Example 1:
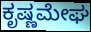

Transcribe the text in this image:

ಕೃಷ್ಣಮೇಘ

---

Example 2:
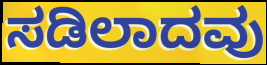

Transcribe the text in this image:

ಸಡಿಲಾದವು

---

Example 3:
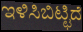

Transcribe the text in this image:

ಇಳಿಸಿಬಿಟ್ಟಿದೆ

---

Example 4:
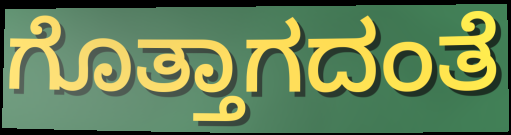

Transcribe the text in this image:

ಗೊತ್ತಾಗದಂತೆ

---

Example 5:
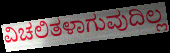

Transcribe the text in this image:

ವಿಚಲಿತಳಾಗುವುದಿಲ್ಲ